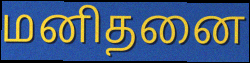
மனிதனை